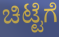
ಚಿಟ್ಟೆಗೆ